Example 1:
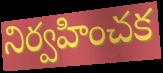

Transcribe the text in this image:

నిర్వహించక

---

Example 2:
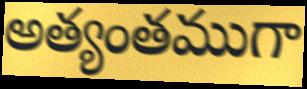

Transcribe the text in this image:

అత్యంతముగా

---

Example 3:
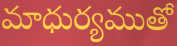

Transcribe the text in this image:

మాధుర్యముతో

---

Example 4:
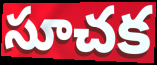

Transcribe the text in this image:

సూచక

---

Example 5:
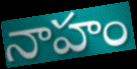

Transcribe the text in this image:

నాహం